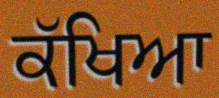
ਕੱਖਿਆ